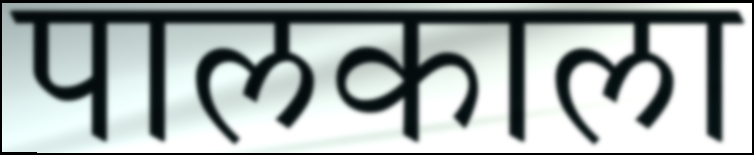
पालकाला